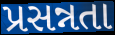
પ્રસન્નતા